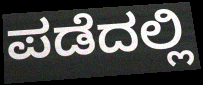
ಪಡೆದಲ್ಲಿ